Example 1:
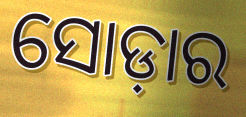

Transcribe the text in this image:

ସୋଡ଼ାର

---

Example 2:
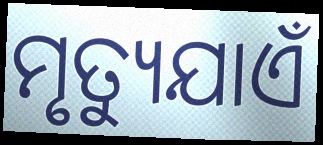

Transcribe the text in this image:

ମୃତ୍ୟୁଯାଏଁ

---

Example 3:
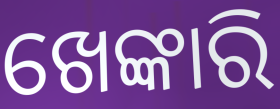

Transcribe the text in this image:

ଖେଙ୍କାରି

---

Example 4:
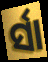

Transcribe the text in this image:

ର୍ସା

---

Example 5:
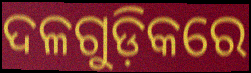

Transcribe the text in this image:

ଦଳଗୁଡ଼ିକରେ